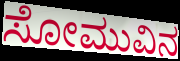
ಸೋಮುವಿನ